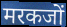
मरकजों